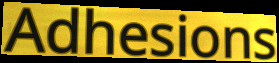
Adhesions